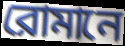
রোমানে